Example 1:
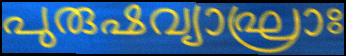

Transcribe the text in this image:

പുരുഷവ്യാഘ്രാഃ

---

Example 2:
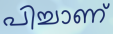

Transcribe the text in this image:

പിച്ചാണ്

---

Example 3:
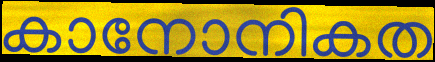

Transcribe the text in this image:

കാനോനികത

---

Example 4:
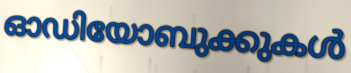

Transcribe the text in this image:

ഓഡിയോബുക്കുകൾ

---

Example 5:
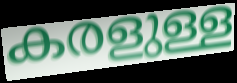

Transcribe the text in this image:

കരളുള്ള